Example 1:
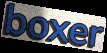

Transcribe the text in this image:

boxer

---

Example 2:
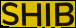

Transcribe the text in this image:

SHIB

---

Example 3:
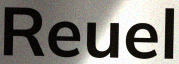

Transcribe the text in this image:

Reuel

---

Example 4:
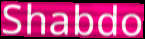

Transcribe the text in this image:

Shabdo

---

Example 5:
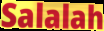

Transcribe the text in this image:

Salalah